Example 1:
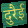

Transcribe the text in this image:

दुरैई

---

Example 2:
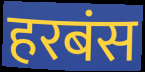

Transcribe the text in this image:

हरबंस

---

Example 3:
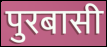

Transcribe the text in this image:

पुरबासी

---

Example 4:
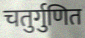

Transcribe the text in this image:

चतुर्गुणित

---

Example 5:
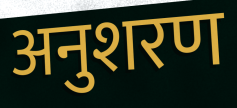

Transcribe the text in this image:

अनुशरण